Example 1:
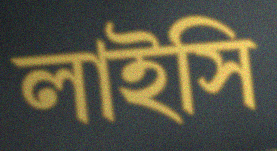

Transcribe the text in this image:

লাইসি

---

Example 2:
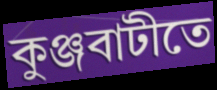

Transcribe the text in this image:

কুঞ্জবাটীতে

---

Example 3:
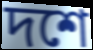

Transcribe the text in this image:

দশে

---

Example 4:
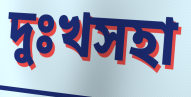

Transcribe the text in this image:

দুঃখসহা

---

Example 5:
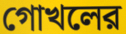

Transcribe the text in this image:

গোখলের